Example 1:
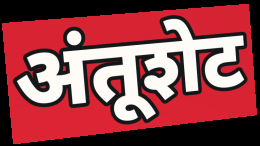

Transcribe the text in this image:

अंतूशेट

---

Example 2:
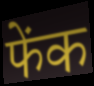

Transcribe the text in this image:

फेंक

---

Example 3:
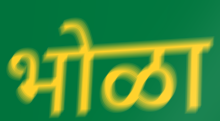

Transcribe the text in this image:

भोळा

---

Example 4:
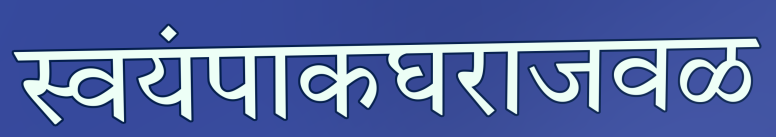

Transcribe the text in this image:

स्वयंपाकघराजवळ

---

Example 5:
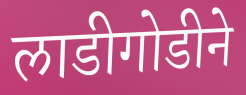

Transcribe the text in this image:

लाडीगोडीने